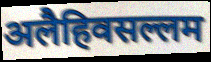
अलैहिवसल्लम